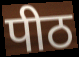
पीठ